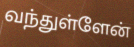
வந்துள்ளேன்